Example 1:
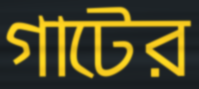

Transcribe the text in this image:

গাটের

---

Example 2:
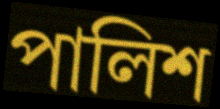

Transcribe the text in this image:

পালিশ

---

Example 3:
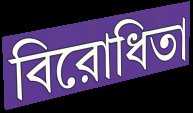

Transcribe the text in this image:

বিরোধিতা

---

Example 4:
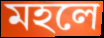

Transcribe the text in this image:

মহলে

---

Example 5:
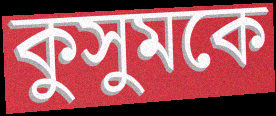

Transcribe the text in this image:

কুসুমকে